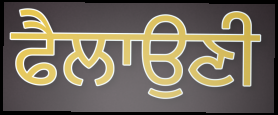
ਫੈਲਾਉਣੀ